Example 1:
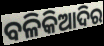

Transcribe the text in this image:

ବଳିକିଆଦିର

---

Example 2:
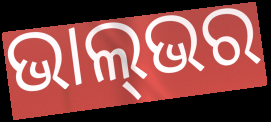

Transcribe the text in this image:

ଭାଲ୍‌ଭର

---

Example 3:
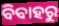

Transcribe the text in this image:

ବିବାହରୁ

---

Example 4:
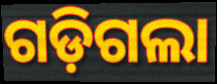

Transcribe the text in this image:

ଗଡ଼ିଗଲା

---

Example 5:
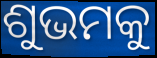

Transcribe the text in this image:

ଶୁଭମକୁ